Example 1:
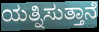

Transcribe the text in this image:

ಯತ್ನಿಸುತ್ತಾನೆ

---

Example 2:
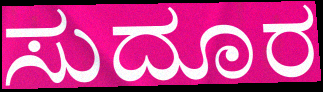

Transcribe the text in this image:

ಸುದೂರ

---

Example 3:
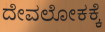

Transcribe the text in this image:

ದೇವಲೋಕಕ್ಕೆ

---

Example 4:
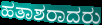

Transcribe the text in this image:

ಹತಾಶರಾದರು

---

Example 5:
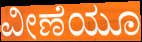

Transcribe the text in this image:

ವೀಣೆಯೂ